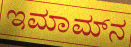
ಇಮಾಮ್‍ನ